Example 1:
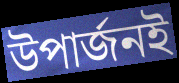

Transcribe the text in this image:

উপার্জনই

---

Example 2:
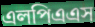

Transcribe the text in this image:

এলপিএএস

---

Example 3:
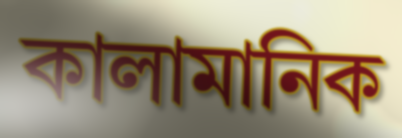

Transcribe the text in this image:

কালামানিক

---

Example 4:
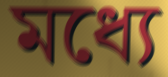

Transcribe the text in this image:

মধ্যে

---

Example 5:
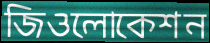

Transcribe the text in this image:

জিওলোকেশন